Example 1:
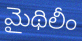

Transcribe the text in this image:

మైథిలీం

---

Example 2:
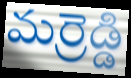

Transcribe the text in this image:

మర్రెడ్డి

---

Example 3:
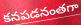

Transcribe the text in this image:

కనపడనంతగా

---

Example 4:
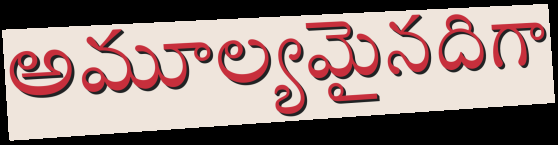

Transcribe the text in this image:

అమూల్యమైనదిగా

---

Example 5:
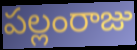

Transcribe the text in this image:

పల్లంరాజు